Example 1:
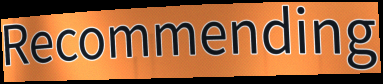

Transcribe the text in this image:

Recommending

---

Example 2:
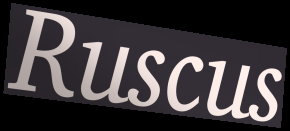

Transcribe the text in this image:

Ruscus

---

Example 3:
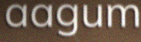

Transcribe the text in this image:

aagum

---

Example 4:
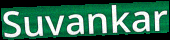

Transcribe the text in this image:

Suvankar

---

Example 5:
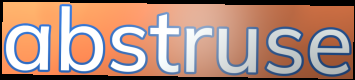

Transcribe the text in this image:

abstruse